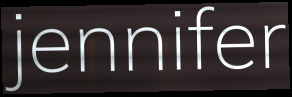
jennifer